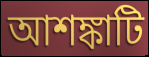
আশঙ্কাটি